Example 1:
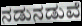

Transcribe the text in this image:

ನಡುನಡುವೆ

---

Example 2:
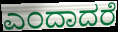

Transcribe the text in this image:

ಎಂದಾದರೆ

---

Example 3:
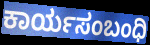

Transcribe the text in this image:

ಕಾರ್ಯಸಂಬಂಧಿ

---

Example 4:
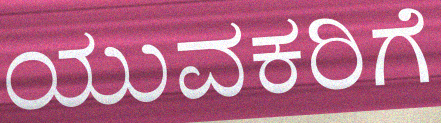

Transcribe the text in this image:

ಯುವಕರಿಗೆ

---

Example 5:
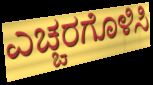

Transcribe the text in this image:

ಎಚ್ಚರಗೊಳಿಸಿ